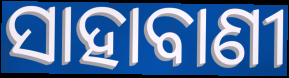
ସାହାବାଣୀ